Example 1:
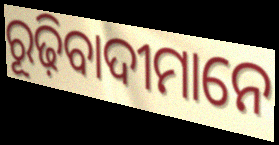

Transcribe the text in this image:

ରୂଢ଼ିବାଦୀମାନେ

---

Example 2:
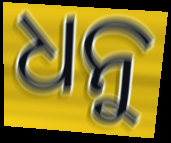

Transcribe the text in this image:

ଧନୁ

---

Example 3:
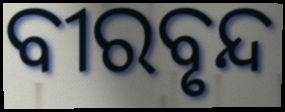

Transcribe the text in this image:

ବୀରବୃନ୍ଦ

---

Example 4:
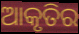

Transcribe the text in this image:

ଆକୃତିର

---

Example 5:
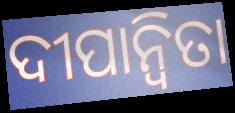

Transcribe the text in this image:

ଦୀପାନ୍ୱିତା